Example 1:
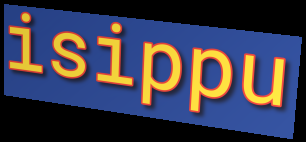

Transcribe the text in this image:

isippu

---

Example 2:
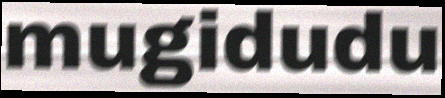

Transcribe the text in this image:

mugidudu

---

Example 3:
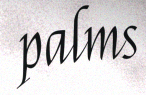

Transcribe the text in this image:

palms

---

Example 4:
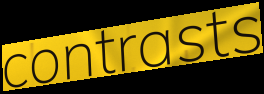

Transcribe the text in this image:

contrasts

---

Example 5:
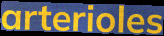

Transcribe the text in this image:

arterioles